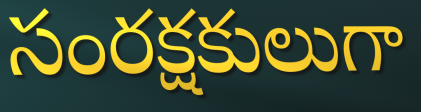
సంరక్షకులుగా